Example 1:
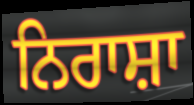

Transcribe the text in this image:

ਨਿਰਾਸ਼ਾ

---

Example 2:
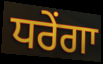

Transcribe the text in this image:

ਧਰੇਂਗਾ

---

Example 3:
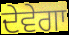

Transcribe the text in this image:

ਦੇਵੇਗਾ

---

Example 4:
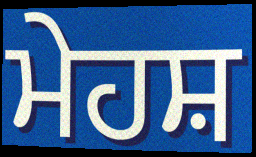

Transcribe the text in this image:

ਮੇਹਸ਼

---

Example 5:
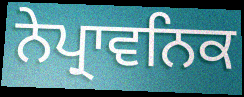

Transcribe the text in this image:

ਨੇਪ੍ਰਾਵਨਿਕ